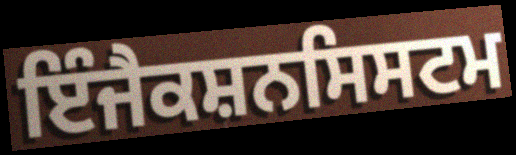
ਇੰਜੈਕਸ਼ਨਸਿਸਟਮ